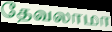
தேவலாமா